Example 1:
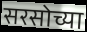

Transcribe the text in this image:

सरसोच्या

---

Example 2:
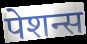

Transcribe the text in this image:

पेशन्स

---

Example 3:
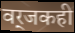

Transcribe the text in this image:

वर्जकही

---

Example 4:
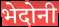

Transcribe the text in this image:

भेदोनी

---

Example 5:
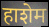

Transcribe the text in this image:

हाशेम